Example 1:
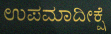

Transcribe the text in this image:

ಉಪಮಾದೀಕ್ಷೆ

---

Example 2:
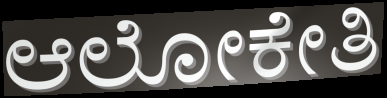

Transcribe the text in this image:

ಆಲೋಕೇತಿ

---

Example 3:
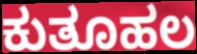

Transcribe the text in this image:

ಕುತೂಹಲ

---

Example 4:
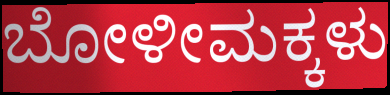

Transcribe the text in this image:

ಬೋಳೀಮಕ್ಕಳು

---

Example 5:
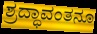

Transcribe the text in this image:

ಶ್ರದ್ಧಾವಂತನೂ